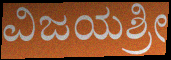
ವಿಜಯಶ್ರೀ